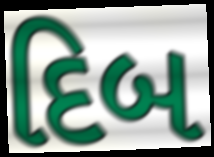
દિબ